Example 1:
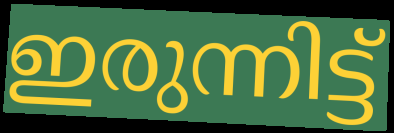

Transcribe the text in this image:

ഇരുന്നിട്ട്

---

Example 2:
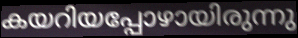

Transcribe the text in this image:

കയറിയപ്പോഴായിരുന്നു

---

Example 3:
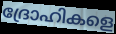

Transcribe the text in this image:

ദ്രോഹികളെ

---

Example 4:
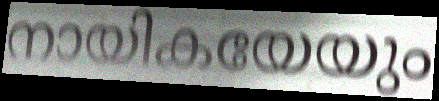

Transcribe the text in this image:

നായികയേയും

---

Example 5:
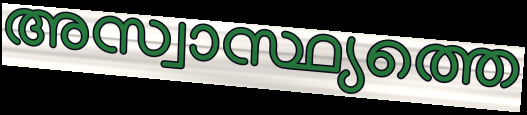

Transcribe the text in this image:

അസ്വാസ്ഥ്യത്തെ